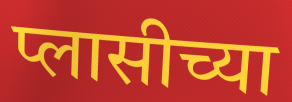
प्लासीच्या